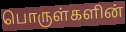
பொருள்களின்